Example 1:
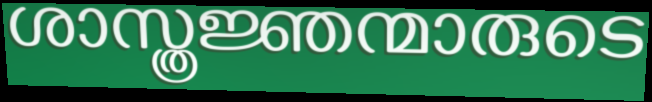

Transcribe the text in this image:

ശാസ്ത്രജ്ഞന്മാരുടെ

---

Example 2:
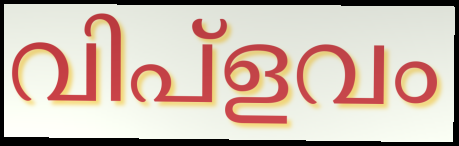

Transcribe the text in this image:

വിപ്ളവം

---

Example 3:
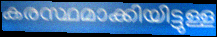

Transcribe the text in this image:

കരസ്ഥമാക്കിയിട്ടുള്ള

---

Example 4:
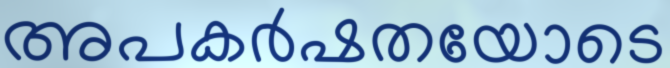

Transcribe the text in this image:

അപകർഷതയോടെ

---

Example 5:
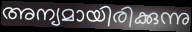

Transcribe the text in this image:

അന്യമായിരിക്കുന്നു